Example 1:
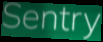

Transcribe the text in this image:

Sentry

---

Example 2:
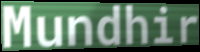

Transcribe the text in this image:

Mundhir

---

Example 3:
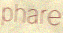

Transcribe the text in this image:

phare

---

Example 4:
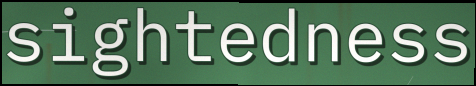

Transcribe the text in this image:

sightedness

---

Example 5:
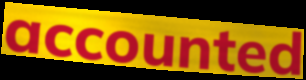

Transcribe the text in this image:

accounted